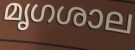
മൃഗശാല